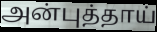
அன்புத்தாய்